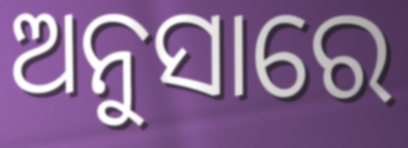
ଅନୁସାରେ